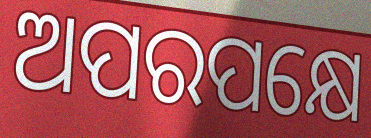
ଅପରପକ୍ଷେ